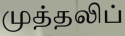
முத்தலிப்